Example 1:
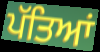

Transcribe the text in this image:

ਪੱਤਿਆਂ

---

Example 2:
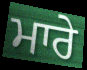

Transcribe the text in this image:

ਮਾਰੇ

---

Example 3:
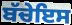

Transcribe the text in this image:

ਬੱਚੇਇਸ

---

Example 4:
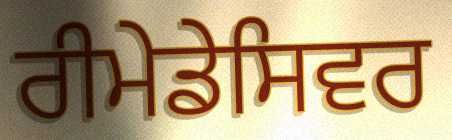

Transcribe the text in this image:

ਰੀਮੇਡੇਸਿਵਰ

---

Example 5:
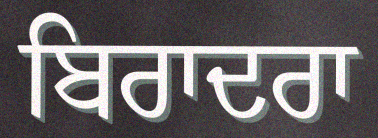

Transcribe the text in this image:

ਬਿਰਾਦਰਾ